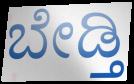
ಬೇಡ್ತಿ